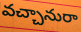
వచ్చానురా